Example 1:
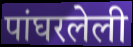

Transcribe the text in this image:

पांघरलेली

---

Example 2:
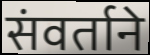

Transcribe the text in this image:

संवर्ताने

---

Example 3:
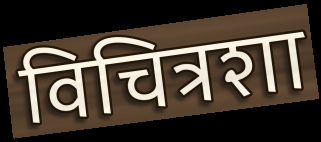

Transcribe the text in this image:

विचित्रशा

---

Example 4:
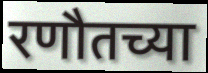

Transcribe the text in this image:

रणौतच्या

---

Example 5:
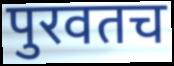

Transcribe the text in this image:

पुरवतच